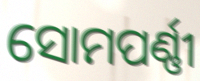
ସୋମପର୍ଣ୍ଣୀ